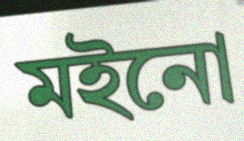
মইনো